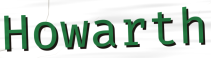
Howarth